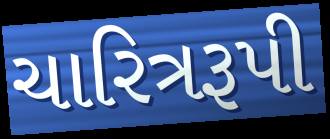
ચારિત્રરૂપી